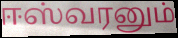
ஈஸ்வரனும்